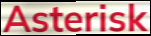
Asterisk